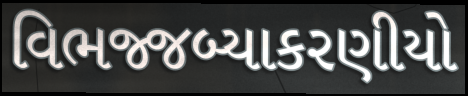
વિભજ્જબ્યાકરણીયો